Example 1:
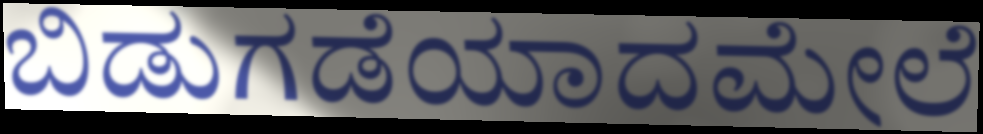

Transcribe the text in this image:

ಬಿಡುಗಡೆಯಾದಮೇಲೆ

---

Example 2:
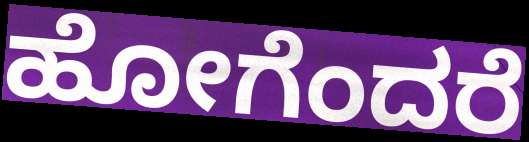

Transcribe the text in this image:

ಹೋಗೆಂದರೆ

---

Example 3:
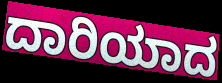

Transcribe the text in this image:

ದಾರಿಯಾದ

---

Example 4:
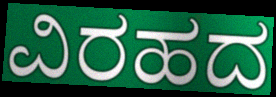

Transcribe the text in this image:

ವಿರಹದ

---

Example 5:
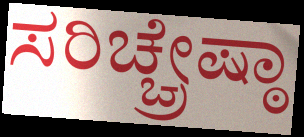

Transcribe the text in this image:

ಸರಿಚ್ಚ್ರೇಷ್ಠಾ